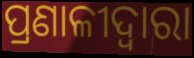
ପ୍ରଣାଳୀଦ୍ୱାରା